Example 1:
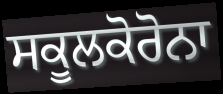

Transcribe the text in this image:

ਸਕੂਲਕੋਰੋਨਾ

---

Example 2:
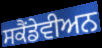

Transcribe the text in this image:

ਸਕੈਂਡੇਵੀਅਨ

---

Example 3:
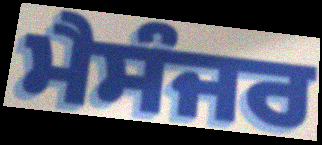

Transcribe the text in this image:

ਮੈਸੰਜਰ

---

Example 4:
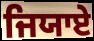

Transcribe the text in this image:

ਜਿਯਾਏ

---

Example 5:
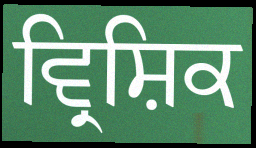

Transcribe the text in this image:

ਵ੍ਰਿਸ਼ਿਕ